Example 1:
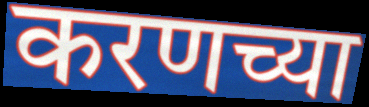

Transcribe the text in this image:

करणच्या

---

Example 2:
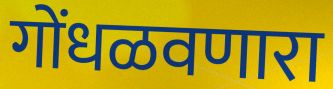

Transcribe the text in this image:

गोंधळवणारा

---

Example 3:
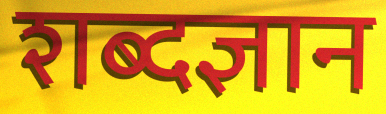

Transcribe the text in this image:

शब्दज्ञान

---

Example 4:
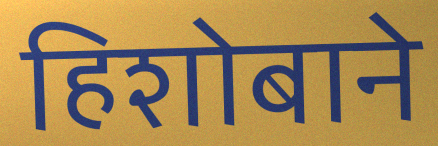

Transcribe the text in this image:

हिशोबाने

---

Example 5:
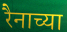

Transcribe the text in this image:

रैनाच्या